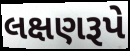
લક્ષણરૂપે